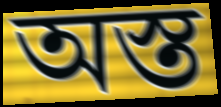
অস্ত